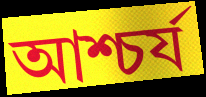
আশ্চর্য